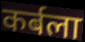
कर्बला